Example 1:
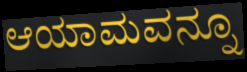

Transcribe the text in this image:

ಆಯಾಮವನ್ನೂ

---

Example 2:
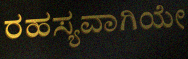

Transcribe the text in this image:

ರಹಸ್ಯವಾಗಿಯೇ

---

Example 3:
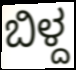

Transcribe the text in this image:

ಬಿಳ್ದ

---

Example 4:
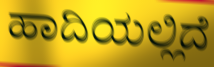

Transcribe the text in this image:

ಹಾದಿಯಲ್ಲಿದೆ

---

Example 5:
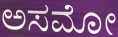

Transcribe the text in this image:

ಅಸಮೋ